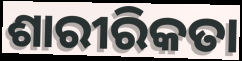
ଶାରୀରିକତା